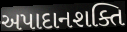
અપાદાનશક્તિ